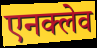
एनक्लेव